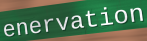
enervation